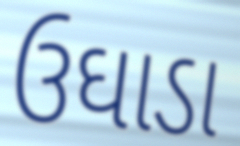
ઉઘાડા